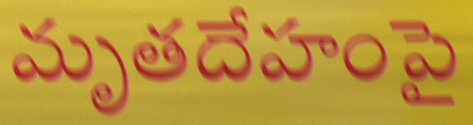
మృతదేహంపై